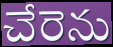
చేరెను